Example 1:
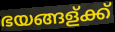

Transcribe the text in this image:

ഭയങ്ങള്ക്ക്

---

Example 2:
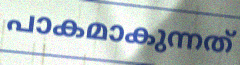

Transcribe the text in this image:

പാകമാകുന്നത്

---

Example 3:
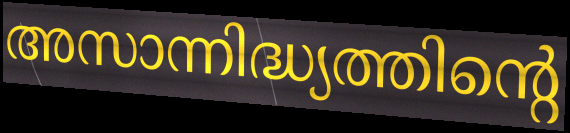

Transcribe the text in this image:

അസാന്നിദ്ധ്യത്തിന്റെ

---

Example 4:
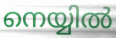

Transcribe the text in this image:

നെയ്യിൽ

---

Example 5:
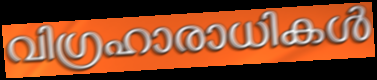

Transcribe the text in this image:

വിഗ്രഹാരാധികൾ